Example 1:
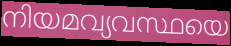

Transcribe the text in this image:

നിയമവ്യവസ്ഥയെ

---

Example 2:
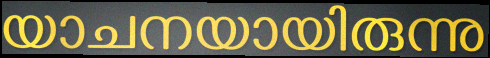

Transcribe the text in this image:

യാചനയായിരുന്നു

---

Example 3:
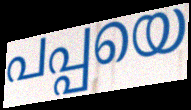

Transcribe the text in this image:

പപ്പയെ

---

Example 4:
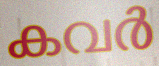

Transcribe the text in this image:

കവർ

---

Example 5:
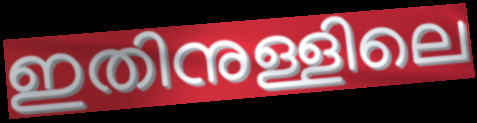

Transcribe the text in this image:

ഇതിനുള്ളിലെ